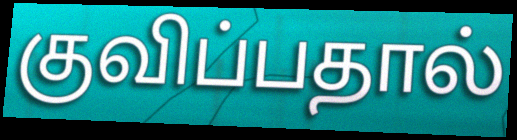
குவிப்பதால்